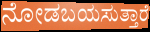
ನೋಡಬಯಸುತ್ತಾರೆ